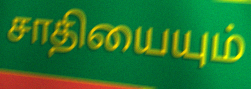
சாதியையும்